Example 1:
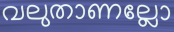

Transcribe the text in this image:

വലുതാണല്ലോ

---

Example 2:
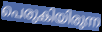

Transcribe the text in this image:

പെരുകിയിരുന്ന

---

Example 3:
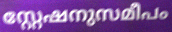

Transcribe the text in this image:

സ്റ്റേഷനുസമീപം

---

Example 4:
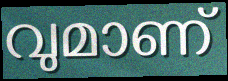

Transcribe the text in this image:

വുമാണ്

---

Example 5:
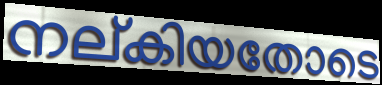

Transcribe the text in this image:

നല്കിയതോടെ